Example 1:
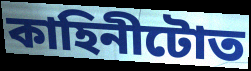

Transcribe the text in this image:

কাহিনীটোত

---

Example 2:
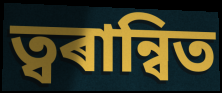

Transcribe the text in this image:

ত্বৰান্বিত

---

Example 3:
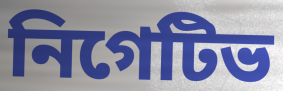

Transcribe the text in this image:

নিগেটিভ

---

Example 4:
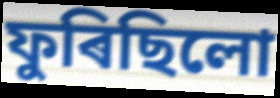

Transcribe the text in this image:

ফুৰিছিলো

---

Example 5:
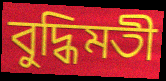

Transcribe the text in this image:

বুদ্ধিমতী